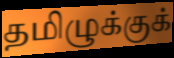
தமிழுக்குக்